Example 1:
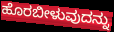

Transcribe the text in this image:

ಹೊರಬೀಳುವುದನ್ನು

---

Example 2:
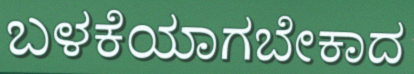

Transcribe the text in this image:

ಬಳಕೆಯಾಗಬೇಕಾದ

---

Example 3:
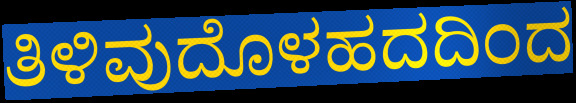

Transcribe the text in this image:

ತಿಳಿವುದೊಳಹದದಿಂದ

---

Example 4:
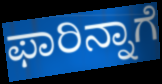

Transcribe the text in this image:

ಫಾರಿನ್ನಾಗೆ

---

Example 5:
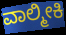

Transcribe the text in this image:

ವಾಲ್ಮೀಕಿ